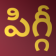
పిగ్గీ